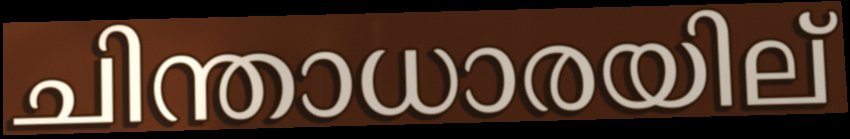
ചിന്താധാരയില്